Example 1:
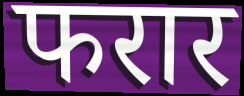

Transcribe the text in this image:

फरार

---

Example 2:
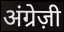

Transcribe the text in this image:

अंग्रेज़ी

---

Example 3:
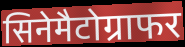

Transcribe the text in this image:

सिनेमैटोग्राफर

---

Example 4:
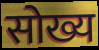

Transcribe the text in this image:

सोख्य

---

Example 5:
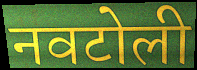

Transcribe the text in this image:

नवटोली